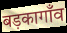
बड़कागाँव